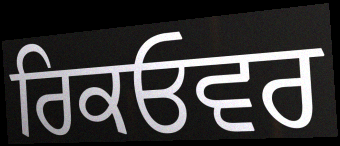
ਰਿਕਓਵਰ